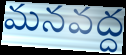
మనవద్ద